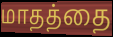
மாதத்தை